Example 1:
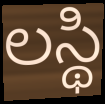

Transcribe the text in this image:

లస్థి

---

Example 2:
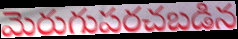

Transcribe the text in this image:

మెరుగుపరచబడిన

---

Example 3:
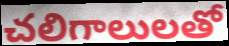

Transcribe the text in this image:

చలిగాలులతో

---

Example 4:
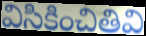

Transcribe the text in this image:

విసికించితివి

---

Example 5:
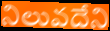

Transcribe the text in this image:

నిలువదేని